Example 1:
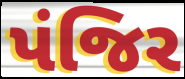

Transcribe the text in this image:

પંજિર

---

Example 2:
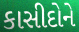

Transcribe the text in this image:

કાસીદોને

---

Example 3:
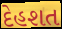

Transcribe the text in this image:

દેહશત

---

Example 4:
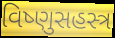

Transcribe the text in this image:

વિષ્ણુસહસ્ત્ર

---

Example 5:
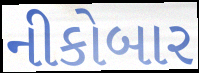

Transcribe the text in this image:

નીકોબાર